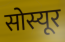
सोस्यूर